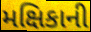
મક્ષિકાની